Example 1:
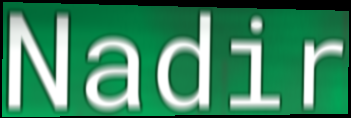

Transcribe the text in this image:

Nadir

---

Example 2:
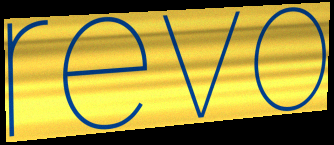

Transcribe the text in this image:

revo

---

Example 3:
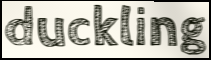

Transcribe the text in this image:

duckling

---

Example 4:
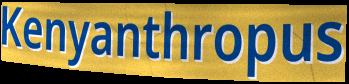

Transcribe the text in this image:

Kenyanthropus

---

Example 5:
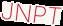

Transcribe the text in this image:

JNPT